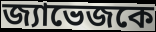
জ্যাভেজকে